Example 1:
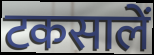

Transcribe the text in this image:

टकसालें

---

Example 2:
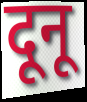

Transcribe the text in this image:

दूनू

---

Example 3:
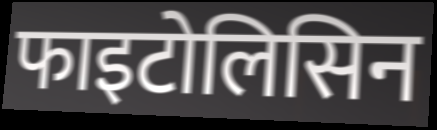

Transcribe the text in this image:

फाइटोलिसिन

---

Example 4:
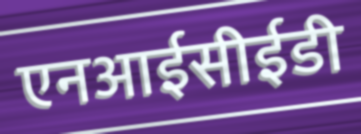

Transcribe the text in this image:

एनआईसीईडी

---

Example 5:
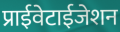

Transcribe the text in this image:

प्राईवेटाईजेशन